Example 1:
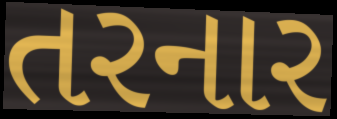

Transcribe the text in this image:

તરનાર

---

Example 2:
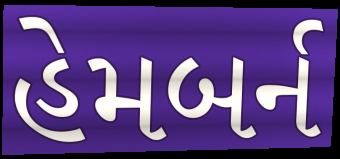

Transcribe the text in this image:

હેમબર્ન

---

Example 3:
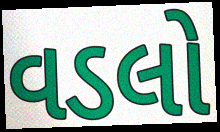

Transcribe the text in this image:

વડલો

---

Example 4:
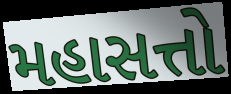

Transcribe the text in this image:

મહાસત્તો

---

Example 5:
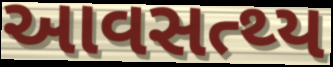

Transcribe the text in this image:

આવસત્થ્ય